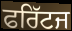
ਫਰਿੱਟਜ